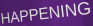
HAPPENING